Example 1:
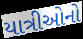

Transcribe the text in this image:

યાત્રીઓનો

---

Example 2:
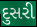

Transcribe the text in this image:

દુસરી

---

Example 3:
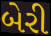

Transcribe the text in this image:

બેરી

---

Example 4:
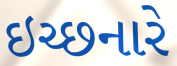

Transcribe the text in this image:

ઇચ્છનારે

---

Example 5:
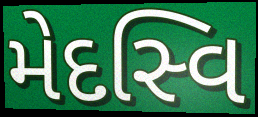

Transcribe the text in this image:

મેદસ્વિ